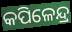
କପିଳେନ୍ଦ୍ର